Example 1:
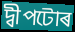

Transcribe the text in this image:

দ্বীপটোৰ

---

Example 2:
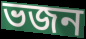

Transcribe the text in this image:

ভজন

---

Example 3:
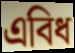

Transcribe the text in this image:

এবিধ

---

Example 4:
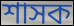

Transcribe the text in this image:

শাসক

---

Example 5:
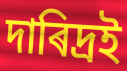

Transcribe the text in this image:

দাৰিদ্ৰই